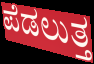
ಪೆಡಲುತ್ತ